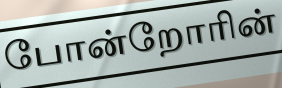
போன்றோரின்